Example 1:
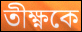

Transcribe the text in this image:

তীক্ষ্ণকে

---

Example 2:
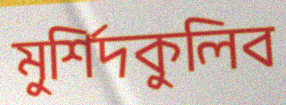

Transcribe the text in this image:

মুর্শিদকুলিব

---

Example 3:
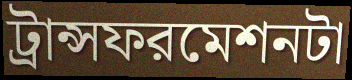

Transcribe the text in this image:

ট্রান্সফরমেশনটা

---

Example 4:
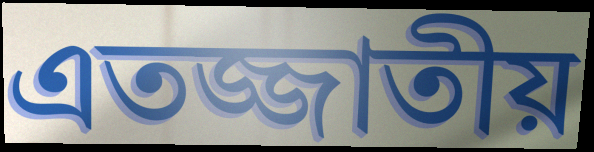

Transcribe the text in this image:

এতজ্জাতীয়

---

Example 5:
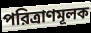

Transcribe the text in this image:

পরিত্রাণমূলক